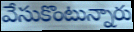
వేసుకొంటున్నారు